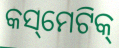
କସ୍‌ମେଟିକ୍